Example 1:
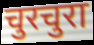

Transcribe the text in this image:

चुरचुरा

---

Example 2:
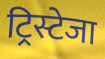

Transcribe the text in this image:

ट्रिस्टेजा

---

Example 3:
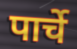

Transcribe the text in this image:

पार्चे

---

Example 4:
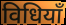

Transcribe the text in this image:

विधियाँ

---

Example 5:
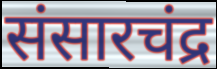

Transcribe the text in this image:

संसारचंद्र